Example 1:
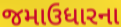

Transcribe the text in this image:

જમાઉધારના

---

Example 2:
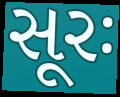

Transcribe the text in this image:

સૂરઃ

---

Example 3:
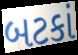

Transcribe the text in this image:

બટકાં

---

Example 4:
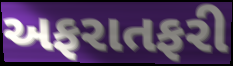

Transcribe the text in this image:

અફરાતફરી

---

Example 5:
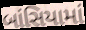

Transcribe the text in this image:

બાંસિયામાં